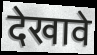
देखावे